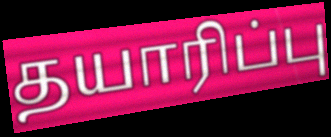
தயாரிப்பு